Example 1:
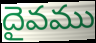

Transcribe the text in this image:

దైవము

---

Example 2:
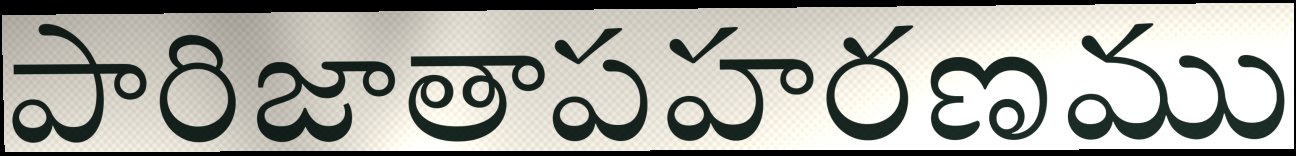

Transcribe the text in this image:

పారిజాతాపహరణము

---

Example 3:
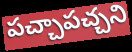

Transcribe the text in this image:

పచ్చాపచ్చని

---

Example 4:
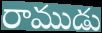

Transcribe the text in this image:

రాముడు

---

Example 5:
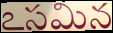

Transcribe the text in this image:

ఽసమిన